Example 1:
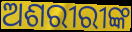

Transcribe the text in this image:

ଅଶରୀରୀଙ୍କ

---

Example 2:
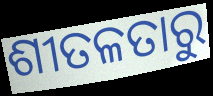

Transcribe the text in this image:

ଶୀତଳତାରୁ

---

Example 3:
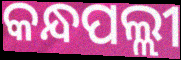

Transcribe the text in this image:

କନ୍ଧପଲ୍ଲୀ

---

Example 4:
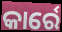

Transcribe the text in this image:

କାର୍ରେ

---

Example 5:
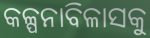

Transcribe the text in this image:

କଳ୍ପନାବିଳାସକୁ